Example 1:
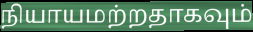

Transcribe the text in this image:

நியாயமற்றதாகவும்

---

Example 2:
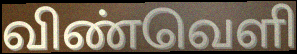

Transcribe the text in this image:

விண்வெளி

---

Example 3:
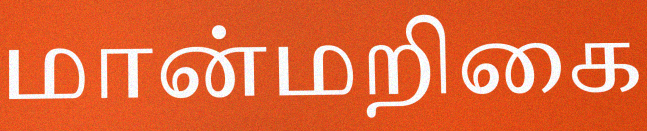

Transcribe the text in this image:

மான்மறிகை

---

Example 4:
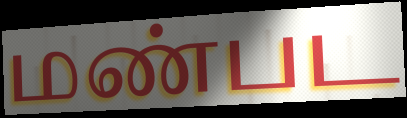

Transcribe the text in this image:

மண்பட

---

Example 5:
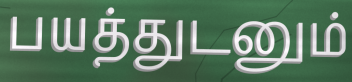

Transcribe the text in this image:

பயத்துடனும்